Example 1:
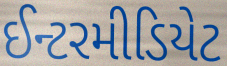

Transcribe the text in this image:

ઈન્ટરમીડિયેટ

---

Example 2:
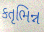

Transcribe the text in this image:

કતૃભિન્ન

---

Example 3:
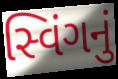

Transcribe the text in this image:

સ્વિંગનું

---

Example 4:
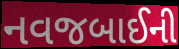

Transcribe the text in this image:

નવજબાઈની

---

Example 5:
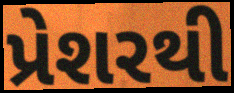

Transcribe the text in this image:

પ્રેશરથી